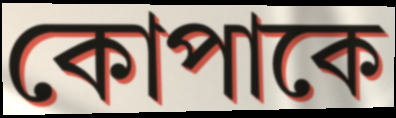
কোপাকে